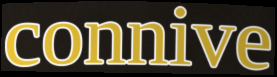
connive